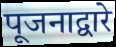
पूजनाद्वारे